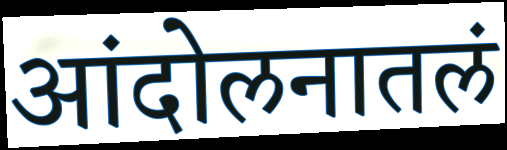
आंदोलनातलं